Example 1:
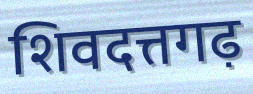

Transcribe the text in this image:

शिवदत्तगढ़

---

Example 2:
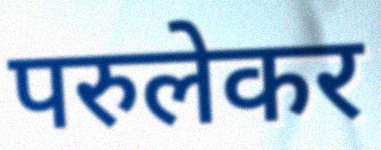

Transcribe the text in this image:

परुलेकर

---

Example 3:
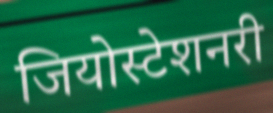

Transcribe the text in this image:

जियोस्टेशनरी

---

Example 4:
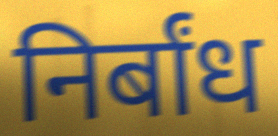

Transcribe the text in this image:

निर्बांध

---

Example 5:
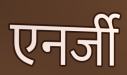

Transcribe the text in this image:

एनर्जी